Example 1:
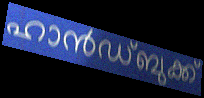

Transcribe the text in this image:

ഹാൻഡ്ബുക്ക്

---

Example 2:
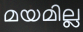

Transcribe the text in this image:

മയമില്ല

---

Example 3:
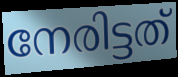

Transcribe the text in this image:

നേരിട്ടത്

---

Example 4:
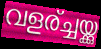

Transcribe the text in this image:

വളര്ച്ചയ്ക്കു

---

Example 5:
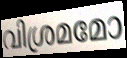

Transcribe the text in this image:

വിശ്രമമോ